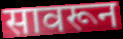
सावरून